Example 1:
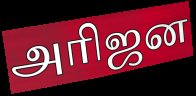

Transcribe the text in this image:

அரிஜன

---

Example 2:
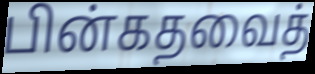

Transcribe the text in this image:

பின்கதவைத்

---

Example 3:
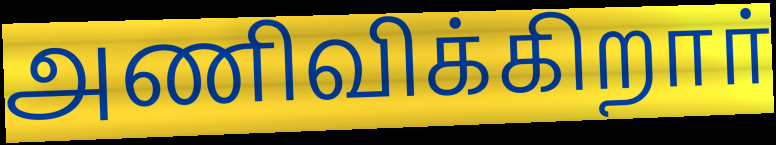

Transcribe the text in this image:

அணிவிக்கிறார்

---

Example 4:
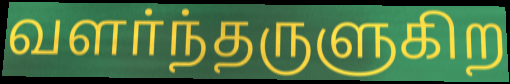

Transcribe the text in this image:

வளர்ந்தருளுகிற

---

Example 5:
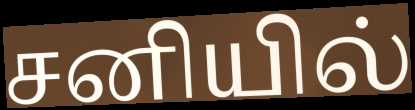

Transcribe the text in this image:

சனியில்